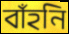
বাঁহনি